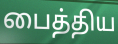
பைத்திய